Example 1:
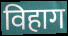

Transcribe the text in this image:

विहाग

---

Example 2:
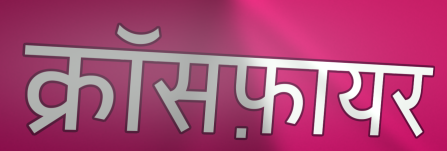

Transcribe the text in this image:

क्रॉसफ़ायर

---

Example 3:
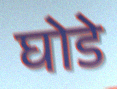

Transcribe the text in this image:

घोडे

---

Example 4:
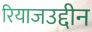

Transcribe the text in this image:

रियाजउद्दीन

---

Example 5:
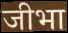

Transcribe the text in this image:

जीभा